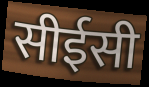
सीईसी